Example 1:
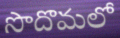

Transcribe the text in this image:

సొదొమలో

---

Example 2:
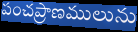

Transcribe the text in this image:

పంచప్రాణములును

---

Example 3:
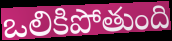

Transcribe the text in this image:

ఒలికిపోతుంది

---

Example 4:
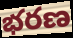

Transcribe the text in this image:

భరణ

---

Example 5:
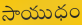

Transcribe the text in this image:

సాయుధం